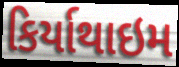
કિર્યાથાઇમ